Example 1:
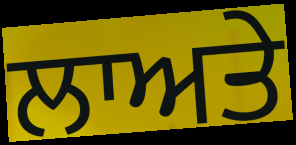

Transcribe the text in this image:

ਲਾਅਤੇ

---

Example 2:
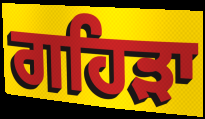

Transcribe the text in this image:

ਗਹਿੜਾ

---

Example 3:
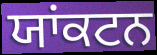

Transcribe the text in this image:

ਯਾਂਕਟਨ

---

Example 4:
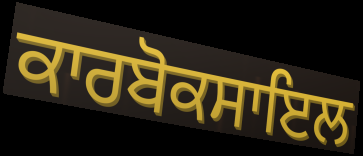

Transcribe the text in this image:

ਕਾਰਬੋਕਸਾਇਲ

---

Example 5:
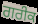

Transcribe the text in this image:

ਗਰੀਕ